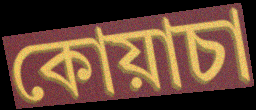
কোয়াচা